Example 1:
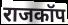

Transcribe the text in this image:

राजकॉप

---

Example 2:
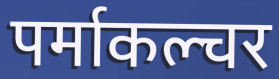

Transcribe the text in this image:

पर्माकल्चर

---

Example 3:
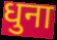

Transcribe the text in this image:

धुना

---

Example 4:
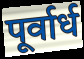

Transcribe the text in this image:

पूर्वार्ध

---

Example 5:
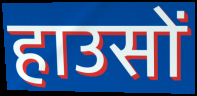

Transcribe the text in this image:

हाउसों